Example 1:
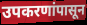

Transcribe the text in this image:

उपकरणांपासून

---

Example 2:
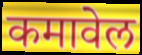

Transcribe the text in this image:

कमावेल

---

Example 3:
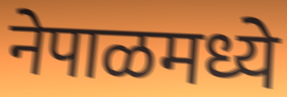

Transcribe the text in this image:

नेपाळमध्ये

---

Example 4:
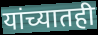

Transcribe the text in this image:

यांच्यातही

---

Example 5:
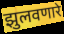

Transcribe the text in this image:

झुलवणारे